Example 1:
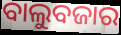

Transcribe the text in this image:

ବାଲୁବଜାର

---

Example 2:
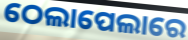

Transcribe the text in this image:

ଠେଲାପେଲାରେ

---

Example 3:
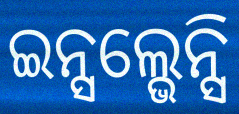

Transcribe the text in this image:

ଇନ୍ସଲ୍ଭେନ୍ସି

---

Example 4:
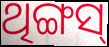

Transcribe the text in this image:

ଥିଙ୍ଗସ୍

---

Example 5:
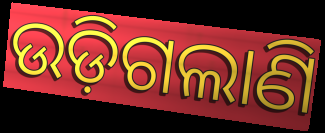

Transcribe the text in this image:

ଉଡ଼ିଗଲାଣି